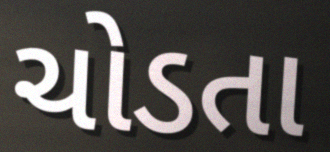
ચોડતા